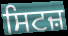
ਸਿਟਜ਼